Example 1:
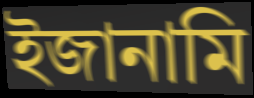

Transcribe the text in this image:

ইজানামি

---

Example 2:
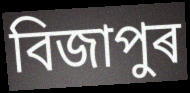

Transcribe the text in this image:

বিজাপুৰ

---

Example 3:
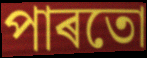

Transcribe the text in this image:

পাৰতো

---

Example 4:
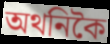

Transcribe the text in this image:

অথনিকৈ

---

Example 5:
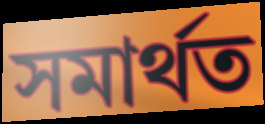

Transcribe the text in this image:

সমাৰ্থত